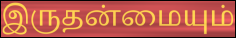
இருதன்மையும்